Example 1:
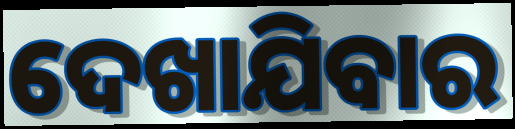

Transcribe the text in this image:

ଦେଖାଯିବାର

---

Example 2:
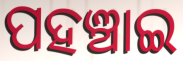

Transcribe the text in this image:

ପହଞ୍ଚାଇ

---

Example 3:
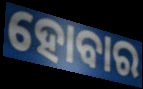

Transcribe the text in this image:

ହୋବାର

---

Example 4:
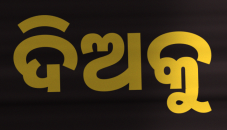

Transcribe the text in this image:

ଦିଅକୁ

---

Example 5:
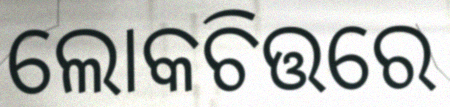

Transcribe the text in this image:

ଲୋକଚିତ୍ତରେ